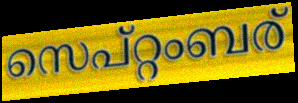
സെപ്റ്റംബര്